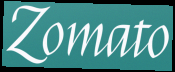
Zomato